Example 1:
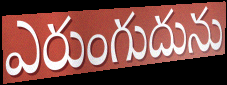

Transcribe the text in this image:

ఎరుంగుదును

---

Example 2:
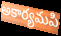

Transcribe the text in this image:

అకార్యమపి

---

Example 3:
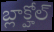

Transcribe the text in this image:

బ్లాక్హోల్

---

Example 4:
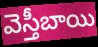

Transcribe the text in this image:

వెస్తీబాయి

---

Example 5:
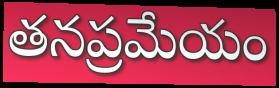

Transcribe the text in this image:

తనప్రమేయం